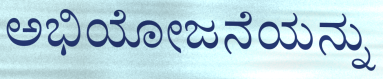
ಅಭಿಯೋಜನೆಯನ್ನು